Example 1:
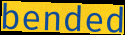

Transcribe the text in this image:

bended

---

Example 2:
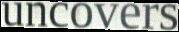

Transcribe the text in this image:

uncovers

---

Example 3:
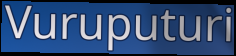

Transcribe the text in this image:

Vuruputuri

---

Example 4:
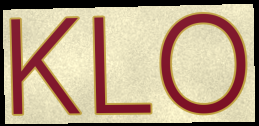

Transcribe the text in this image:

KLO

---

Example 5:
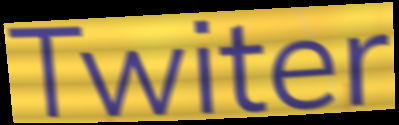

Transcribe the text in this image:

Twiter